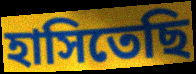
হাসিতেছি